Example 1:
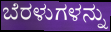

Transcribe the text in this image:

ಬೆರಳುಗಳನ್ನು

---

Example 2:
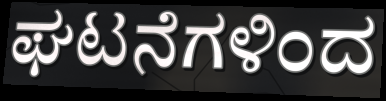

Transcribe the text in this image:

ಘಟನೆಗಳಿಂದ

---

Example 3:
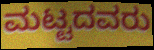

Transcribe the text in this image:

ಮಟ್ಟದವರು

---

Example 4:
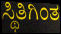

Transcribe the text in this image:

ಸ್ಥಿತಿಗಿಂತ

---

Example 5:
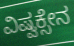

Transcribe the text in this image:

ವಿಷ್ವಕ್ಸೇನ